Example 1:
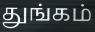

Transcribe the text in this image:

துங்கம்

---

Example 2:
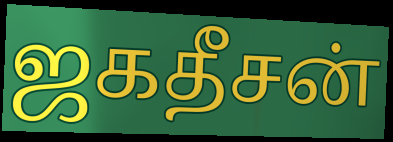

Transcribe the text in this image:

ஜகதீசன்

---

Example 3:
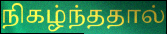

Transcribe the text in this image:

நிகழ்ந்ததால்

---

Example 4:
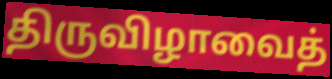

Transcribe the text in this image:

திருவிழாவைத்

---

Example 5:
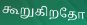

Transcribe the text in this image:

கூறுகிறதோ